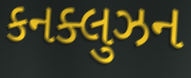
કનક્લુઝન